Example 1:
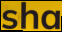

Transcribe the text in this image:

sha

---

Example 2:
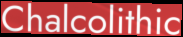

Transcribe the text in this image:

Chalcolithic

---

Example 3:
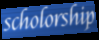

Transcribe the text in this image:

scholorship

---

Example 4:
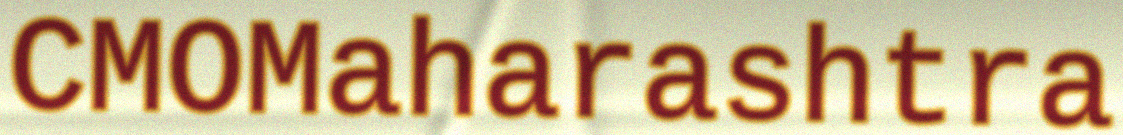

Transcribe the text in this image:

CMOMaharashtra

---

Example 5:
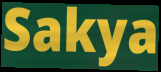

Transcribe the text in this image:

Sakya